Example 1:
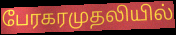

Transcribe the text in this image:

பேரகரமுதலியில்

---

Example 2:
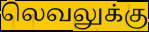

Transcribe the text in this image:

லெவலுக்கு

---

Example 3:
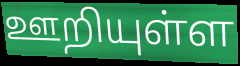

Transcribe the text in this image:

ஊறியுள்ள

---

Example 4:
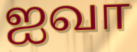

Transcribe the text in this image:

ஐவா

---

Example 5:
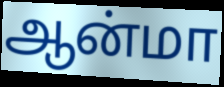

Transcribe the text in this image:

ஆன்மா